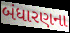
બંધારણના